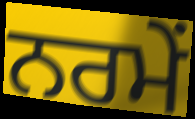
ਨਰਮੇਂ